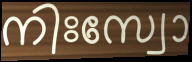
നിഃസ്വോ